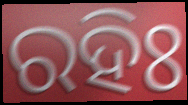
ରହିଃ